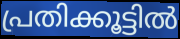
പ്രതിക്കൂട്ടിൽ